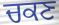
ਚਕਣ